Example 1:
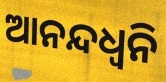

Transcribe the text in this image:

ଆନନ୍ଦଧ୍ଵନି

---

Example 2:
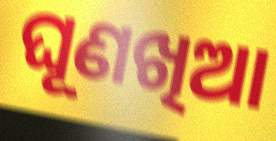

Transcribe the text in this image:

ଘୂଣଖିଆ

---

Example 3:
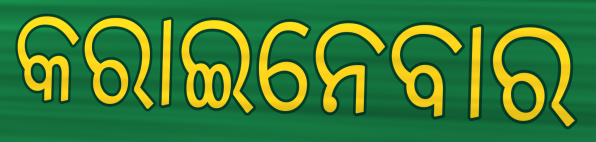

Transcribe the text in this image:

କରାଇନେବାର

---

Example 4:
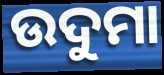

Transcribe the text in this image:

ଉଦୁମା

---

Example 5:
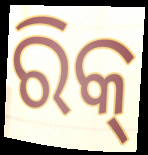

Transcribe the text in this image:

ରିକ୍